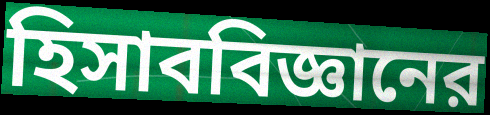
হিসাববিজ্ঞানের